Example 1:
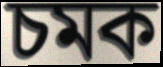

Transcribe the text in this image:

চমক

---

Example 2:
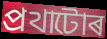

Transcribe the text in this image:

প্ৰথাটোৰ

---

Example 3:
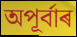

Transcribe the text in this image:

অপূৰ্বাৰ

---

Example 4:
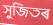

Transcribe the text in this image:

সুজিতৰ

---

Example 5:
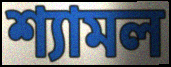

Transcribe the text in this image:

শ্যামল